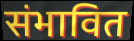
संभावित